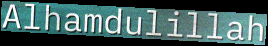
Alhamdulillah